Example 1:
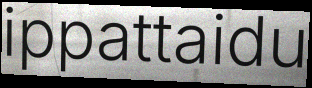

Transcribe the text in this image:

ippattaidu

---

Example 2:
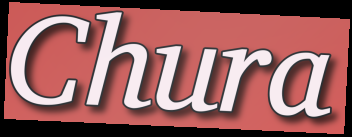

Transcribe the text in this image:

Chura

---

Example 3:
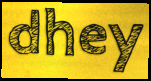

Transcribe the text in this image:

dhey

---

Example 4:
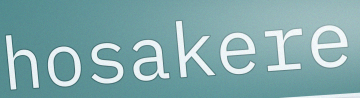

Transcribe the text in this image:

hosakere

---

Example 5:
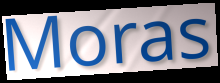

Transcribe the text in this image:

Moras